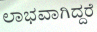
ಲಾಭವಾಗಿದ್ದರೆ